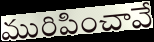
మురిపించావే